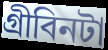
গ্রীবিনটা